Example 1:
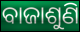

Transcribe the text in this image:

ବାଜାଶୁଣି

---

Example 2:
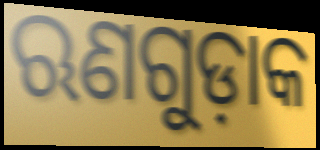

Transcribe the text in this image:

ଋଣଗୁଡ଼ାକ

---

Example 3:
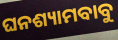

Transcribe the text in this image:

ଘନଶ୍ୟାମବାବୁ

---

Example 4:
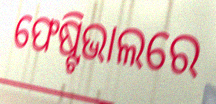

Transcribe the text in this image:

ଫେଷ୍ଟିଭାଲରେ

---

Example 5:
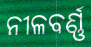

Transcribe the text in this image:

ନୀଳବର୍ଣ୍ଣ